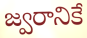
జ్వరానికే